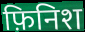
फ़िनिश